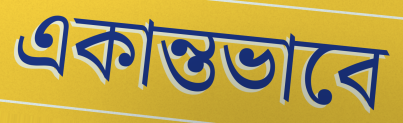
একান্তভাবে